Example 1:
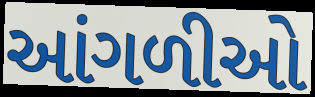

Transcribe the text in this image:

આંગળીઓ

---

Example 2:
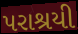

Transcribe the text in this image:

પરાશ્રયી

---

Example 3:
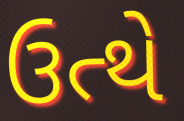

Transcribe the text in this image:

ઉત્થે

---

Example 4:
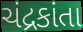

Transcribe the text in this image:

ચંદ્રકાંતા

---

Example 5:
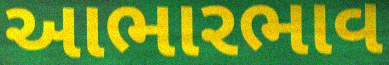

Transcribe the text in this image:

આભારભાવ